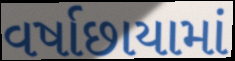
વર્ષાછાયામાં